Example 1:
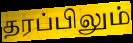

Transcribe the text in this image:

தரப்பிலும்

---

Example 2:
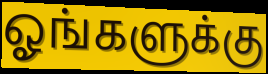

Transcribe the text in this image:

ஓங்களுக்கு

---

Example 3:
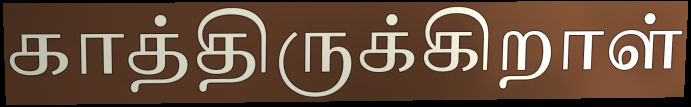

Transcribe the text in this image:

காத்திருக்கிறாள்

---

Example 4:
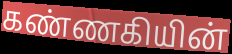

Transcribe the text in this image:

கண்ணகியின்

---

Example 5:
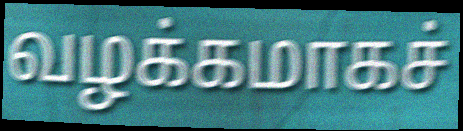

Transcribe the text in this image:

வழக்கமாகச்